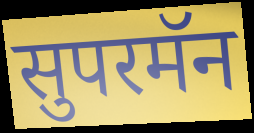
सुपरमॅन